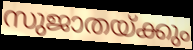
സുജാതയ്ക്കും